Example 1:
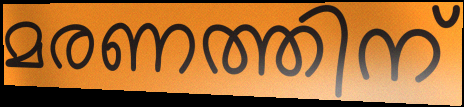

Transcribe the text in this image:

മരണത്തിന്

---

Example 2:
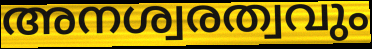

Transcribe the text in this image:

അനശ്വരത്വവും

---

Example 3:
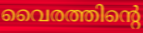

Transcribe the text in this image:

വൈരത്തിന്റെ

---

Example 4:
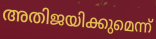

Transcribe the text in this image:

അതിജയിക്കുമെന്ന്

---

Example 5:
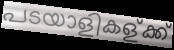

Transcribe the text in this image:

പടയാളികള്ക്ക്